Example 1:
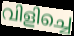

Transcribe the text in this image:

വിളിച്ചെ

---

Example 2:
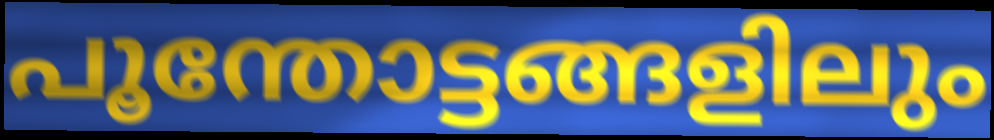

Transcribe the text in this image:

പൂന്തോട്ടങ്ങളിലും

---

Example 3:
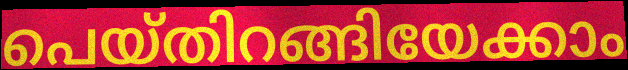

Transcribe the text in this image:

പെയ്തിറങ്ങിയേക്കാം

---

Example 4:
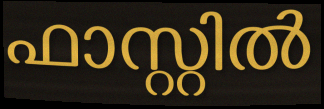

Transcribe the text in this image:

ഫാസ്റ്റിൽ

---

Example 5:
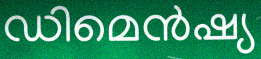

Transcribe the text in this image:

ഡിമെൻഷ്യ